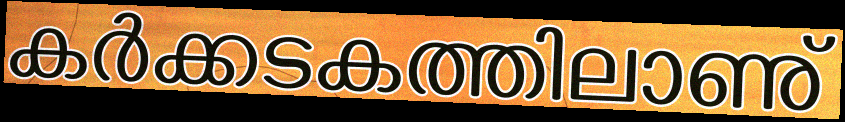
കർക്കടകത്തിലാണു്